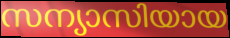
സന്യാസിയായ